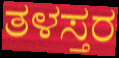
ತಳಸ್ತರ